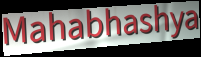
Mahabhashya